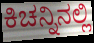
ಕಿಚನ್ನಿನಲ್ಲಿ